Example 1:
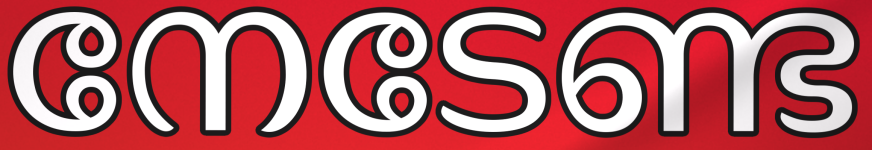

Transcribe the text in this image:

നേടേണ്ട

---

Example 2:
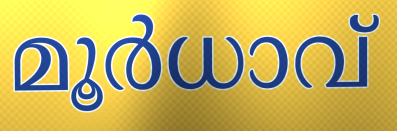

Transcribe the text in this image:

മൂർധാവ്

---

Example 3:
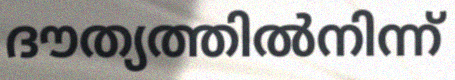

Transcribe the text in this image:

ദൗത്യത്തിൽനിന്ന്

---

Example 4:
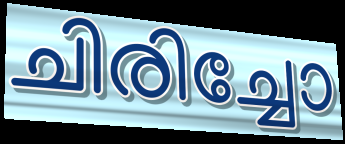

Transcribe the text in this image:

ചിരിച്ചോ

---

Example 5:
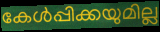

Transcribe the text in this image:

കേൾപ്പിക്കയുമില്ല